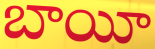
బాయీ